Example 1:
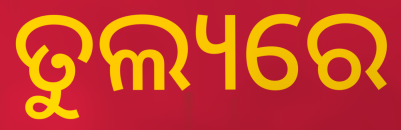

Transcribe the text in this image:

ତୁଲ୍ୟରେ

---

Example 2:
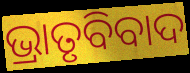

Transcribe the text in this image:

ଭ୍ରାତୃବିବାଦ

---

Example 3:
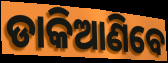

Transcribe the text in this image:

ଡାକିଆଣିବେ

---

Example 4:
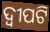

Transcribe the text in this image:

ଦ୍ୱୀପଟି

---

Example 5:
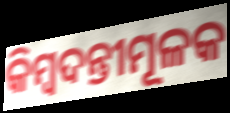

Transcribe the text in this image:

କିମ୍ବଦନ୍ତୀମୂଳକ